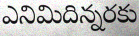
ఎనిమిదిన్నరకు